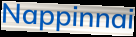
Nappinnai